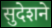
सुदेशने